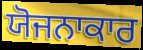
ਯੋਜਨਾਕਾਰ